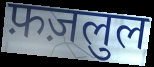
फ़ज़लुल